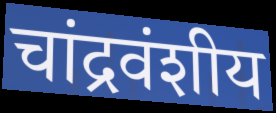
चांद्रवंशीय